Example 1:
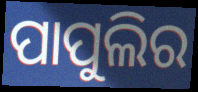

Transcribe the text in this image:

ପାପୁଲିର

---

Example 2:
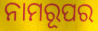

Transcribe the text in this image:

ନାମରୂପର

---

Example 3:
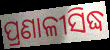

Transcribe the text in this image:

ପ୍ରଣାଳୀସିଦ୍ଧ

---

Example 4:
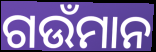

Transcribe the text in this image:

ଗଉଁମାନ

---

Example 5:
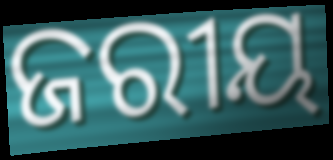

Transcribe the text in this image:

ଜରୀୟ